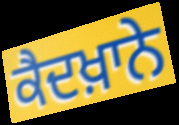
ਕੈਦਖ਼ਾਨੇ